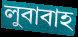
লুবাবাহ